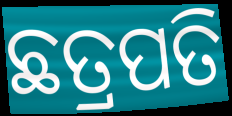
ଛତ୍ରପତି